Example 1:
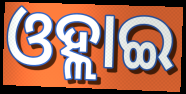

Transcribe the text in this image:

ଓହ୍ଲାଇ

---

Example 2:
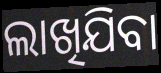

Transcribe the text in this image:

ଲାଖିଯିବା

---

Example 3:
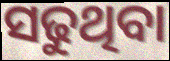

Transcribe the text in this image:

ସଢୁଥିବା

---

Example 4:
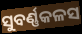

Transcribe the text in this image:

ସୁବର୍ଣ୍ଣକଳସ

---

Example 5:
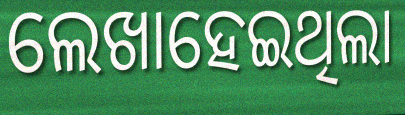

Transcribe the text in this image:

ଲେଖାହେଇଥିଲା